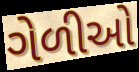
ગેળીઓ